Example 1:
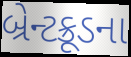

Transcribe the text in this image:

બ્રેન્ટક્રૂડના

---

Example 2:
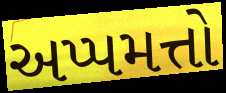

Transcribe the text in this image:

અપ્પમત્તો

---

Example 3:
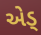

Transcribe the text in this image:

એડ્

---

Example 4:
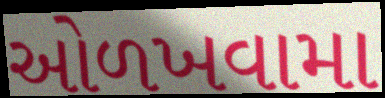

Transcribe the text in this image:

ઓળખવામા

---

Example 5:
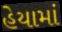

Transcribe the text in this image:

હેયામાં